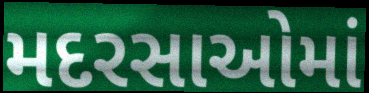
મદરસાઓમાં